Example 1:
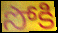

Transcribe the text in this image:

సోకి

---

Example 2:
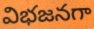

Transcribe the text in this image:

విభజనగా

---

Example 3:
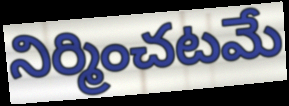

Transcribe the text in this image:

నిర్మించటమే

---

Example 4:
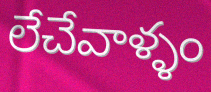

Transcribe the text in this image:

లేచేవాళ్ళం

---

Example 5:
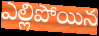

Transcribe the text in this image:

ఎల్లిపోయిన